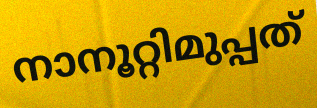
നാനൂറ്റിമുപ്പത്